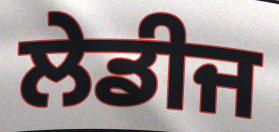
ਲੇਡੀਜ